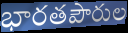
భారతపౌరుల